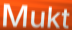
Mukt